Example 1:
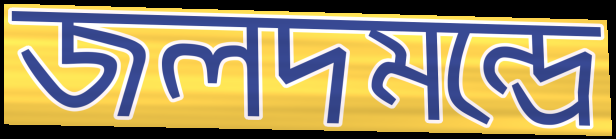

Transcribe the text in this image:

জলদমন্দ্রে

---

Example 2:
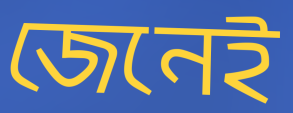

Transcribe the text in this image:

জেনেই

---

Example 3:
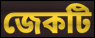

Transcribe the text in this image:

জেকটি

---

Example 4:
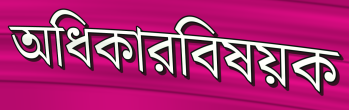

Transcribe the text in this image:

অধিকারবিষয়ক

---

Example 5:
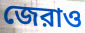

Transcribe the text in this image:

জেরাও